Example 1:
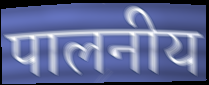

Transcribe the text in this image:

पालनीय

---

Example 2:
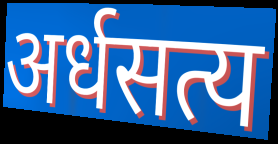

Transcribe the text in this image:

अर्धसत्य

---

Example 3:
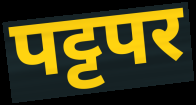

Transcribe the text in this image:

पट्टपर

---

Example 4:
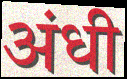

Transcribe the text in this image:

अंधी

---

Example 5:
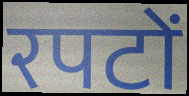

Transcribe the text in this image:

रपटों